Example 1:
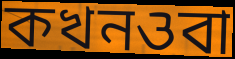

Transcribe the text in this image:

কখনওবা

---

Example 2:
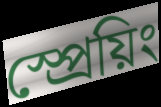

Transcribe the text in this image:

স্প্রেয়িং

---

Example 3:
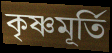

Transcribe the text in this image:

কৃষ্ণমূর্তি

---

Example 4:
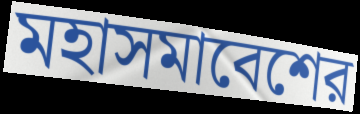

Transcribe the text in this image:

মহাসমাবেশের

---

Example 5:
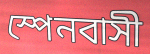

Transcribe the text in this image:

স্পেনবাসী